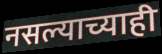
नसल्याच्याही